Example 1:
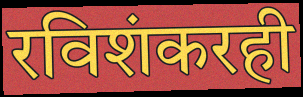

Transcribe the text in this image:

रविशंकरही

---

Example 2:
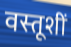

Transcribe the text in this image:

वस्तूशीं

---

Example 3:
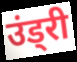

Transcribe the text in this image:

उंड्री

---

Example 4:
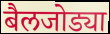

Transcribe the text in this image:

बैलजोड्या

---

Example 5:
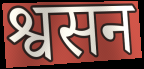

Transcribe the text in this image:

श्वसन